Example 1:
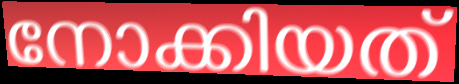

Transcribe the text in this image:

നോക്കിയത്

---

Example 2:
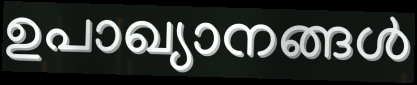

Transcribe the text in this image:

ഉപാഖ്യാനങ്ങൾ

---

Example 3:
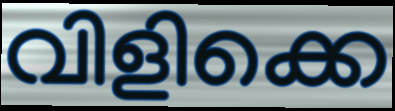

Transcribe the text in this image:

വിളിക്കെ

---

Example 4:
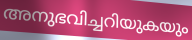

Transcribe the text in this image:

അനുഭവിച്ചറിയുകയും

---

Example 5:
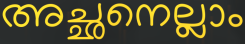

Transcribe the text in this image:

അച്ഛനെല്ലാം